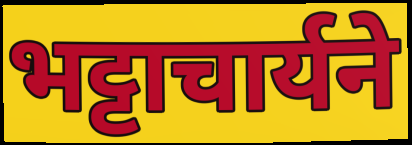
भट्टाचार्यने